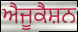
ਐਜੂਕੈਸ਼ਨ